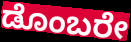
ಡೊಂಬರೇ